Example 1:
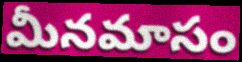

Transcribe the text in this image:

మీనమాసం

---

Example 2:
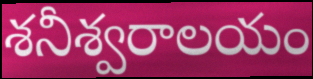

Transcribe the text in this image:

శనీశ్వరాలయం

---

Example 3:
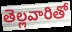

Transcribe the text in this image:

తెల్లవారితో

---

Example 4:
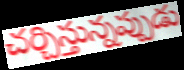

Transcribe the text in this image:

చర్చిస్తున్నప్పుడు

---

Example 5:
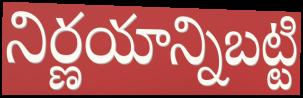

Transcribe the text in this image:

నిర్ణయాన్నిబట్టి